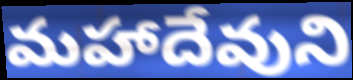
మహాదేవుని